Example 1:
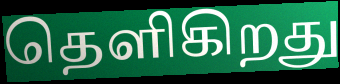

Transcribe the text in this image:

தெளிகிறது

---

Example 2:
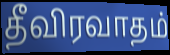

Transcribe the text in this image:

தீவிரவாதம்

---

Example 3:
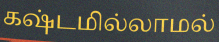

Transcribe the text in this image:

கஷ்டமில்லாமல்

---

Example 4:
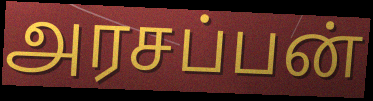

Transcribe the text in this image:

அரசப்பன்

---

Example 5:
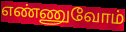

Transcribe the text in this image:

எண்ணுவோம்